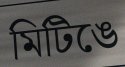
মিটিঙে